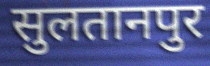
सुलतानपुर